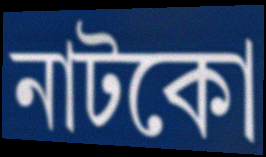
নাটকো